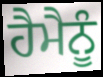
ਹੈਮੈਨੂੰ